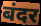
बंदर